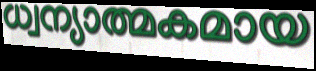
ധ്വന്യാത്മകമായ